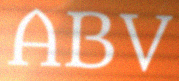
ABV